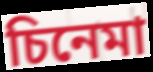
চিনেমা